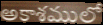
అకాశములో